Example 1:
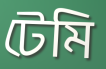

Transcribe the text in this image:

টেমি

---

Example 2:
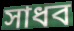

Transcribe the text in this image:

সাধব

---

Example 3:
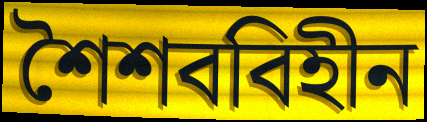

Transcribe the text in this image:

শৈশববিহীন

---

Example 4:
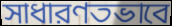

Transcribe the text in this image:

সাধারণতভাবে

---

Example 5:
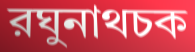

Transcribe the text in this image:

রঘুনাথচক